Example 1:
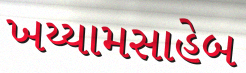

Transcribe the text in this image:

ખય્યામસાહેબ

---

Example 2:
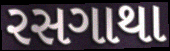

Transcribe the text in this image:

રસગાથા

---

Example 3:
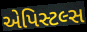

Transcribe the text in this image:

એપિસ્ટલ્સ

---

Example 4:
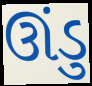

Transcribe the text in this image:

ઊંડુ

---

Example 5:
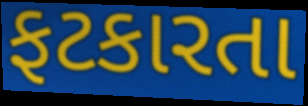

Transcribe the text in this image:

ફટકારતા